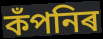
কঁপনিৰ